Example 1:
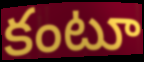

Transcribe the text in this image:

కంటూ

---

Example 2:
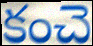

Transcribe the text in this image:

కంచె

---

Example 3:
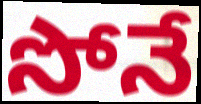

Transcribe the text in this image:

సోనే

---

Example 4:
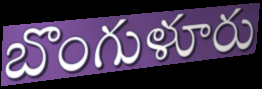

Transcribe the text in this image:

బొంగుళూరు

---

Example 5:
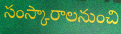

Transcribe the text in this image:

సంస్కారాలనుంచి